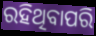
ରହିଥିବାପରି